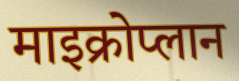
माइक्रोप्लान